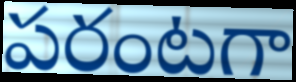
పరంటగా